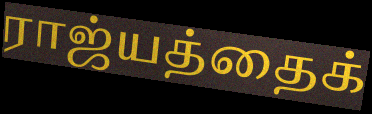
ராஜ்யத்தைக்